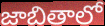
జాబితాలో